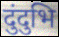
दुंदुभि